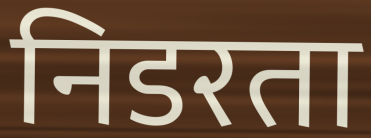
निडरता